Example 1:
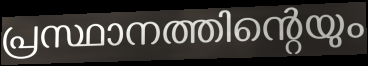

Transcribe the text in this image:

പ്രസ്ഥാനത്തിന്റെയും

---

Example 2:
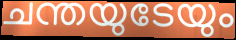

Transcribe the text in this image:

ചന്തയുടേയും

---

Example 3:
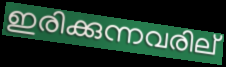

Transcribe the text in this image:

ഇരിക്കുന്നവരില്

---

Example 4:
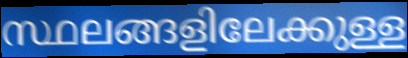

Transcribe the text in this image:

സ്ഥലങ്ങളിലേക്കുള്ള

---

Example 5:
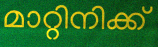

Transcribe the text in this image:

മാറ്റിനിക്ക്